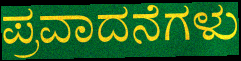
ಪ್ರವಾದನೆಗಳು